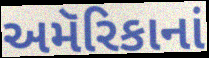
અમૅરિકાનાં